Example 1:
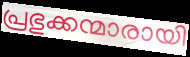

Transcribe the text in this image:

പ്രഭുക്കന്മാരായി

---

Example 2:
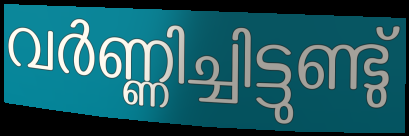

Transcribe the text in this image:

വർണ്ണിച്ചിട്ടുണ്ടു്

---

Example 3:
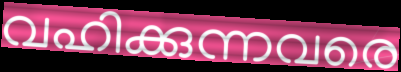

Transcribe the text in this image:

വഹിക്കുന്നവരെ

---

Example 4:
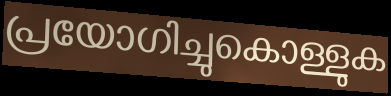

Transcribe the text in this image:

പ്രയോഗിച്ചുകൊള്ളുക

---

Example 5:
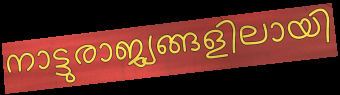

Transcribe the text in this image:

നാട്ടുരാജ്യങ്ങളിലായി